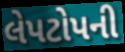
લેપટોપની